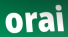
orai